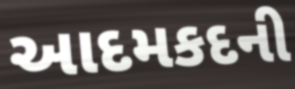
આદમકદની